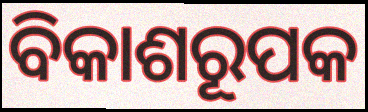
ବିକାଶରୂପକ